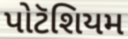
પોટૅશિયમ